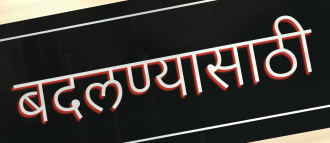
बदलण्यासाठी